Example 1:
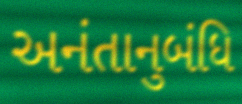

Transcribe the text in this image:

અનંતાનુબંધિ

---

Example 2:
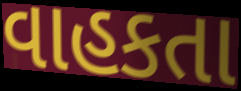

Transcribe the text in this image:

વાહકતા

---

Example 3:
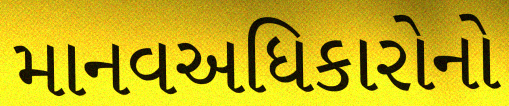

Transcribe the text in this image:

માનવઅધિકારોનો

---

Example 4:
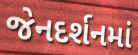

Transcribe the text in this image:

જેનદર્શનમાં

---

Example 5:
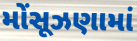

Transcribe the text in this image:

મોંસૂઝણામાં